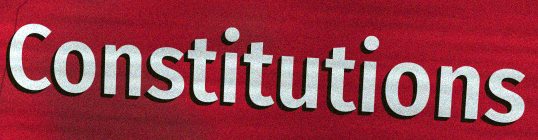
Constitutions